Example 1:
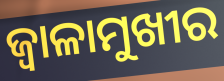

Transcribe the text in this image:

ଜ୍ୱାଳାମୁଖୀର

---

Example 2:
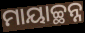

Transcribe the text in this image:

ମାୟାଚ୍ଛନ୍ନ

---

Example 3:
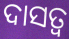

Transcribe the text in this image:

ଦାସତ୍ଵ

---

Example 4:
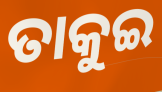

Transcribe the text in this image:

ତାକୁଇ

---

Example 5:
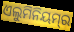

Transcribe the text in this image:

ଏଲୁମିନିୟମ୍‌ର